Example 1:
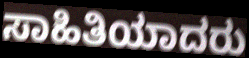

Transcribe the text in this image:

ಸಾಹಿತಿಯಾದರು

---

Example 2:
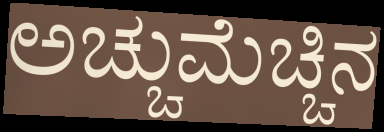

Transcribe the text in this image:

ಅಚ್ಚುಮೆಚ್ಚಿನ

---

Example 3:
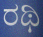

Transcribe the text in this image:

ರಥಿ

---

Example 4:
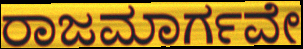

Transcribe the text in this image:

ರಾಜಮಾರ್ಗವೇ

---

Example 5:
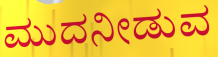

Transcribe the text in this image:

ಮುದನೀಡುವ